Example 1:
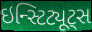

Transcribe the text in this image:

ઇન્સ્ટિટ્યૂટ્સ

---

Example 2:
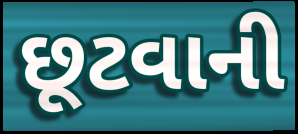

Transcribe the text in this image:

છૂટવાની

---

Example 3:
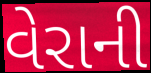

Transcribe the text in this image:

વેરાની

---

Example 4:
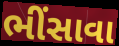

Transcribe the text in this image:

ભીંસાવા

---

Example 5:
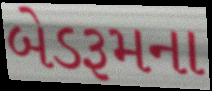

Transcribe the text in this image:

બેડરૂમના